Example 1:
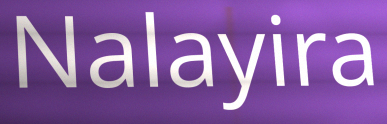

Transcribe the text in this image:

Nalayira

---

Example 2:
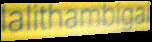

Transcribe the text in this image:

lalithambigai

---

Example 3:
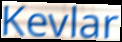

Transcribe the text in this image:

Kevlar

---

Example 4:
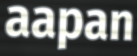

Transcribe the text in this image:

aapan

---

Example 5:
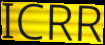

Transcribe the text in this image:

ICRR